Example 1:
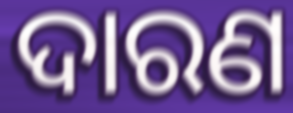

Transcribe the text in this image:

ଦାରଣ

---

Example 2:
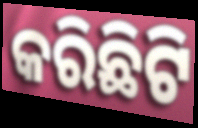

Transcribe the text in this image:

କରିଛିଟି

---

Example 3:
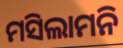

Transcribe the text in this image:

ମସିଲାମନି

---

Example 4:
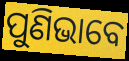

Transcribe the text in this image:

ପୁଣିଭାବେ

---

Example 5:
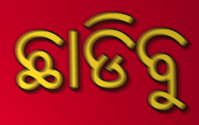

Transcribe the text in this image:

ଛାଡିବୁ